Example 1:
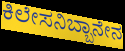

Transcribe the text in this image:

ಕಿಲೇಸನಿಬ್ಬಾನೇನ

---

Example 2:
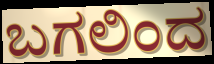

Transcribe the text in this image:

ಬಗಲಿಂದ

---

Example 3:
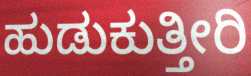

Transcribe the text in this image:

ಹುಡುಕುತ್ತೀರಿ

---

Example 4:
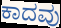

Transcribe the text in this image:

ಕಾದವು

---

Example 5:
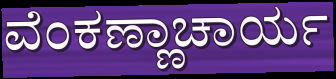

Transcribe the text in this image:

ವೆಂಕಣ್ಣಾಚಾರ್ಯ